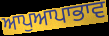
ਆਪੁਆਪਾਭਾਵ